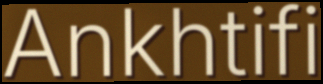
Ankhtifi